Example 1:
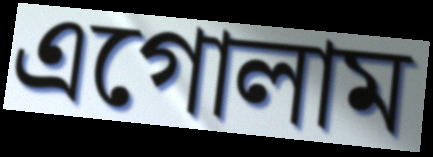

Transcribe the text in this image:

এগোলাম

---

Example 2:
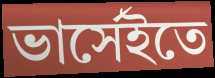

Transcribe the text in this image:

ভার্সেইতে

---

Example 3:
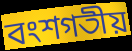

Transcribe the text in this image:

বংশগতীয়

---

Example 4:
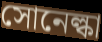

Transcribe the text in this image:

সোনেল্কা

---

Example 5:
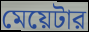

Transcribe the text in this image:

মেয়েটার